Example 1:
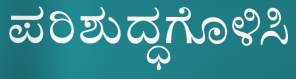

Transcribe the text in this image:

ಪರಿಶುದ್ಧಗೊಳಿಸಿ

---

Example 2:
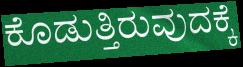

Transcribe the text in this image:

ಕೊಡುತ್ತಿರುವುದಕ್ಕೆ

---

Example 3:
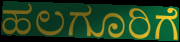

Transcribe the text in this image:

ಹಲಗೂರಿಗೆ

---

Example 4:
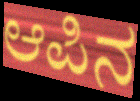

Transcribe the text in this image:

ಆಪಿನ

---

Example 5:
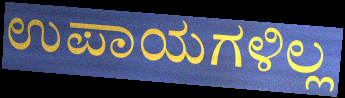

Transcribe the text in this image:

ಉಪಾಯಗಳಿಲ್ಲ